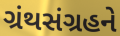
ગ્રંથસંગ્રહને